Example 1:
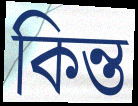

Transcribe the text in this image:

কিন্ত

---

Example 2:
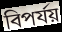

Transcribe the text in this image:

বিপর্যয়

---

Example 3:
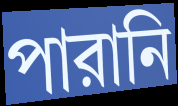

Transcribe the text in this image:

পারানি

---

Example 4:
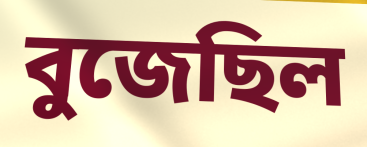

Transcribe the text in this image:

বুজেছিল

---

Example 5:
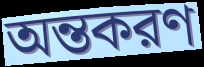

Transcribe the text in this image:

অন্তকরণ